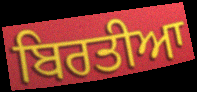
ਬਿਰਤੀਆ